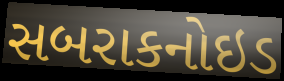
સબરાકનોઇડ